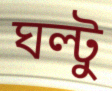
ঘল্টু